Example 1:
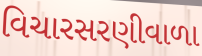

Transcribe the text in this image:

વિચારસરણીવાળા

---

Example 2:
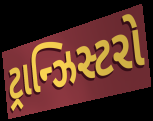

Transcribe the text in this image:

ટ્રાન્ઝિસ્ટરો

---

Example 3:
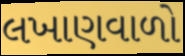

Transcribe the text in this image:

લખાણવાળો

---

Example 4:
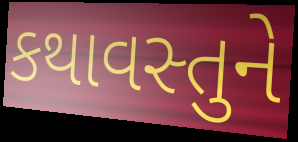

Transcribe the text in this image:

કથાવસ્તુને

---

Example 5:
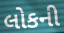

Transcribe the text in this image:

લોકની